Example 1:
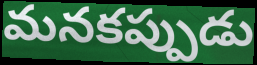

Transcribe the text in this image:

మనకప్పుడు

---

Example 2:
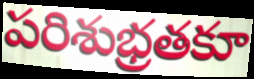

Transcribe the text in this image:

పరిశుభ్రతకూ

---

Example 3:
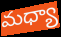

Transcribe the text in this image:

మధ్యా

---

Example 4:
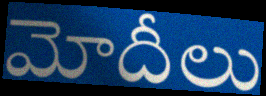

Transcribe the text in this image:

మోదీలు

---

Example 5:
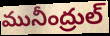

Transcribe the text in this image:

మునీంద్రుల్